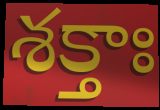
శక్తాః